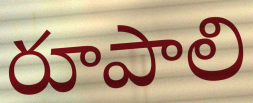
రూపాలి